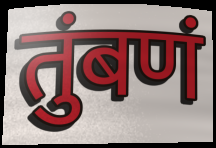
तुंबणं